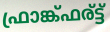
ഫ്രാങ്ക്ഫര്ട്ട്